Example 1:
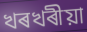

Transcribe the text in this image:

খৰখৰীয়া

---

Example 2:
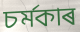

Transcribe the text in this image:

চৰ্মকাৰ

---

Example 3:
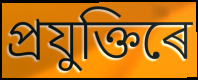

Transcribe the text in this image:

প্ৰযুক্তিৰে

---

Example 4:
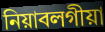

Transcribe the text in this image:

নিয়াবলগীয়া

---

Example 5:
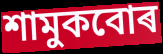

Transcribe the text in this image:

শামুকবোৰ